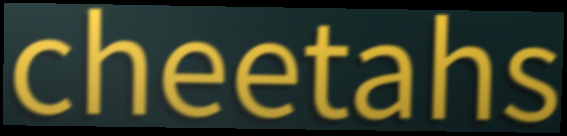
cheetahs